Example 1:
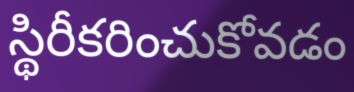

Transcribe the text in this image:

స్థిరీకరించుకోవడం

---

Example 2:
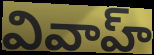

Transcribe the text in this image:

వివాహ్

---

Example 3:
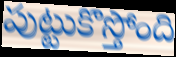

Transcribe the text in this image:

పుట్టుకొస్తోంది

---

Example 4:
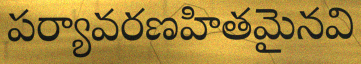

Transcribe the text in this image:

పర్యావరణహితమైనవి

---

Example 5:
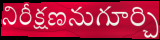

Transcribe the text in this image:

నిరీక్షణనుగూర్చి